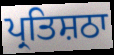
ਪ੍ਰਤਿਸ਼ਠਾ